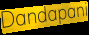
Dandapani